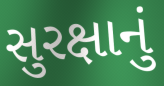
સુરક્ષાનું